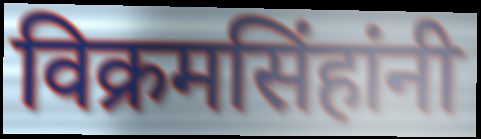
विक्रमसिंहांनी